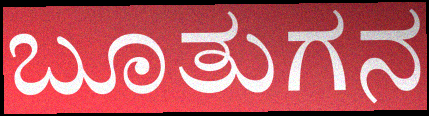
ಬೂತುಗನ